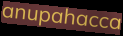
anupahacca